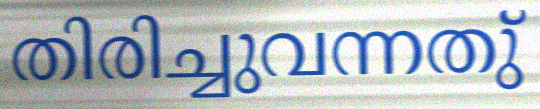
തിരിച്ചുവന്നതു്